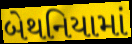
બેથનિયામાં